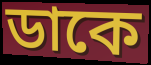
ডাকে